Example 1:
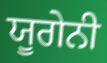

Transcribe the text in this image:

ਯੂਗੇਨੀ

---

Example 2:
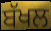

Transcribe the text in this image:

ਬੱਖਲ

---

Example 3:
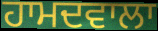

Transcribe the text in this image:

ਹਾਮਦਵਾਲਾ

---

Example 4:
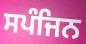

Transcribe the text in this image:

ਸਪੰਜਿਨ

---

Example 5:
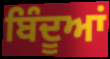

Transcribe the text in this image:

ਬਿੰਦੂਆਂ